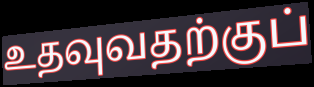
உதவுவதற்குப்